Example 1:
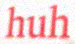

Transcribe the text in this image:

huh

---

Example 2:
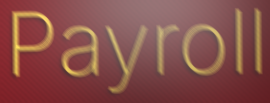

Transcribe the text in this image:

Payroll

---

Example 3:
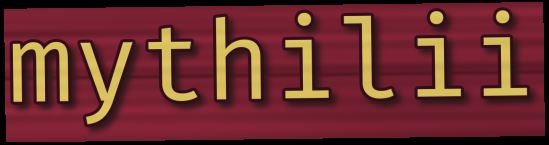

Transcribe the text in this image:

mythilii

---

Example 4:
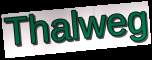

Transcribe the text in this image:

Thalweg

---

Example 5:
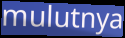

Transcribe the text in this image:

mulutnya